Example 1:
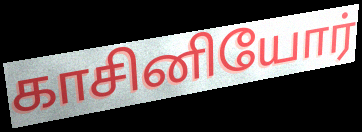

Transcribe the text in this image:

காசினியோர்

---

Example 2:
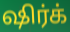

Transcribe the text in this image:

ஷிர்க்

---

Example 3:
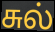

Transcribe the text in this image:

சுல்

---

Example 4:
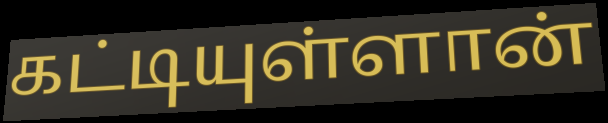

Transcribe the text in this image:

கட்டியுள்ளான்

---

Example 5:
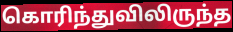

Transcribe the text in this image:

கொரிந்துவிலிருந்த